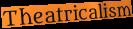
Theatricalism